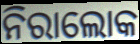
ନିରାଲୋକ